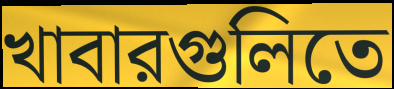
খাবারগুলিতে